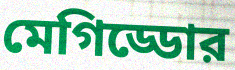
মেগিড্ডোর